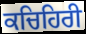
ਕਚਿਹਿਰੀ